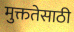
मुक्ततेसाठी